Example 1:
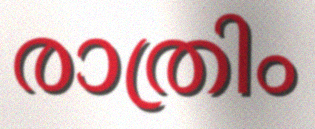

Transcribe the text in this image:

രാത്രിം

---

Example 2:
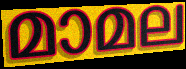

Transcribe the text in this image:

മാമല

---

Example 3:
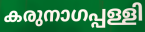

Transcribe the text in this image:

കരുനാഗപ്പള്ളി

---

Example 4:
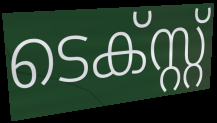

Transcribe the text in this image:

ടെക്സ്റ്റ്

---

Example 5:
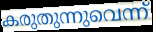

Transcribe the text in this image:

കരുതുന്നുവെന്ന്